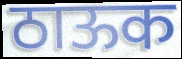
ठाऊक